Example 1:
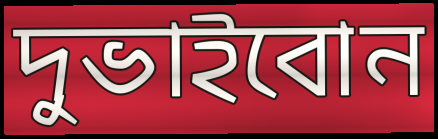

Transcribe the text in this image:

দুভাইবোন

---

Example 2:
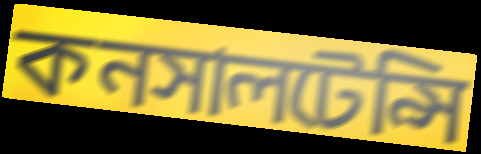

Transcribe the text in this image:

কনসালটেন্সি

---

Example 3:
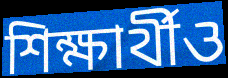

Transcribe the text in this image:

শিক্ষার্থীও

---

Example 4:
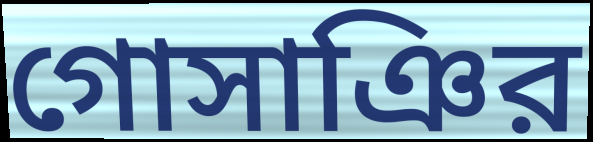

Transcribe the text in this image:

গোসাঞির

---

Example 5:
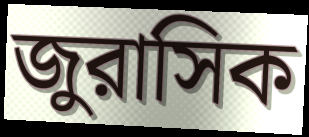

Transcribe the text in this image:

জুরাসিক